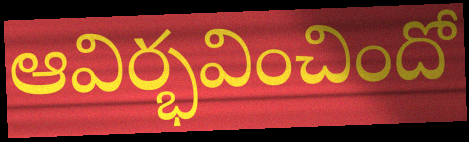
ఆవిర్భవించిందో